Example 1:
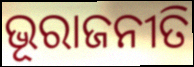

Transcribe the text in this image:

ଭୂରାଜନୀତି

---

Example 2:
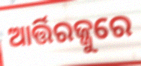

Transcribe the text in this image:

ଆର୍ତ୍ତିରଜ୍ଜୁରେ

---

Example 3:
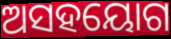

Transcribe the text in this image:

ଅସହୟୋଗ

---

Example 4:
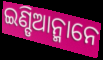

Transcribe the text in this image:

ଇଣ୍ଡିଆନ୍ମାନେ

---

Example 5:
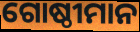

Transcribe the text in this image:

ଗୋଷ୍ଠୀମାନ